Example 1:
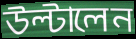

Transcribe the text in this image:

উল্টালেন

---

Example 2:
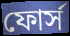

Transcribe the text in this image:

ফোর্স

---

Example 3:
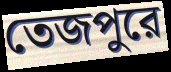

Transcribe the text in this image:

তেজপুরে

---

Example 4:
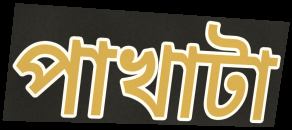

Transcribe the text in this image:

পাখাটা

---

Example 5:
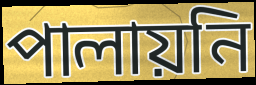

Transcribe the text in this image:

পালায়নি